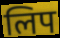
लिप